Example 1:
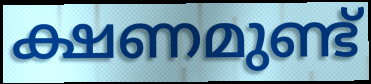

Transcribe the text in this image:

ക്ഷണമുണ്ട്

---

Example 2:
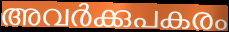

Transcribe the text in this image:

അവർക്കുപകരം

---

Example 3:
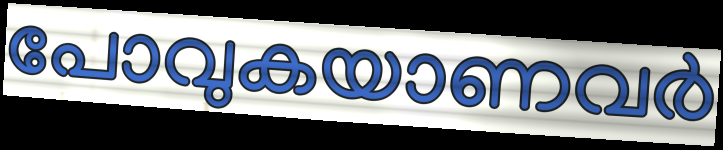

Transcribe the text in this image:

പോവുകയാണവർ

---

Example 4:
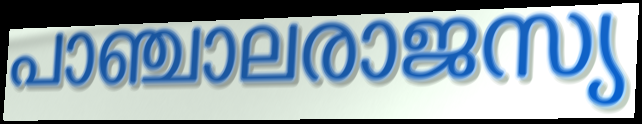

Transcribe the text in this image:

പാഞ്ചാലരാജസ്യ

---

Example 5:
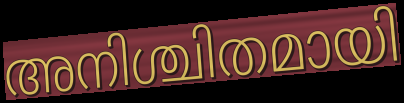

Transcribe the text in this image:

അനിശ്ചിതമായി